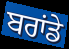
ਬਰਾਂਡੇ